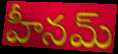
హీనమ్